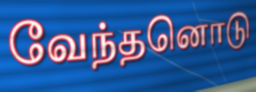
வேந்தனொடு